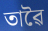
তাৱৈ